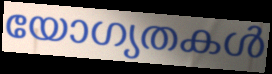
യോഗ്യതകൾ